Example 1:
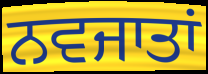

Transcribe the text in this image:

ਨਵਜਾਤਾਂ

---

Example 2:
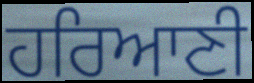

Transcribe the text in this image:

ਹਰਿਆਣੀ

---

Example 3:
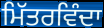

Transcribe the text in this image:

ਮਿੱਤਰਵਿੰਦਾ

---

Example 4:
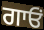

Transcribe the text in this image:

ਗਾਓਂ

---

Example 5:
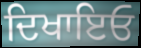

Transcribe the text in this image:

ਦਿਖਾਇਓ